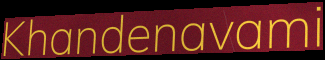
Khandenavami